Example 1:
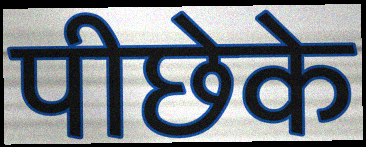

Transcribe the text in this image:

पीछेके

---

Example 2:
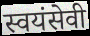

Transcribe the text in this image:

स्वयंसेवी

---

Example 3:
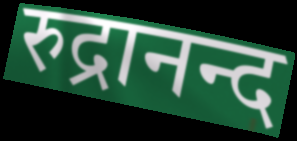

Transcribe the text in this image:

रुद्रानन्द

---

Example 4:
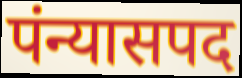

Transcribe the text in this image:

पंन्यासपद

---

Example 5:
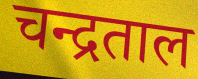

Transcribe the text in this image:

चन्द्रताल